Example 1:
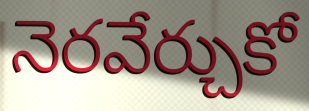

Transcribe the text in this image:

నెరవేర్చుకో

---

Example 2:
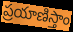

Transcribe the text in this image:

ప్రయాణిస్తాం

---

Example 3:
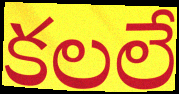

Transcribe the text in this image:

కలలే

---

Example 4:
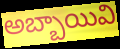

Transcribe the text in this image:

అబ్బాయివి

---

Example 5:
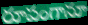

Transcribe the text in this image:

రూపంగానూ